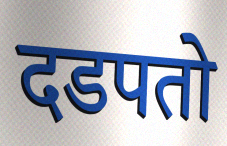
दडपतो